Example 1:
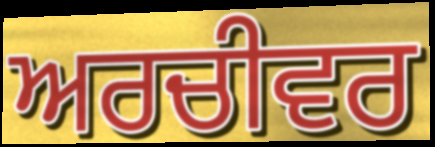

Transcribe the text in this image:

ਅਰਚੀਵਰ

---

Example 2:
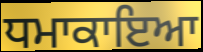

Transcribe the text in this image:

ਧਮਾਕਾਇਆ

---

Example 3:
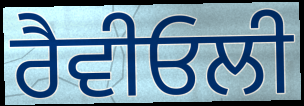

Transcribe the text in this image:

ਰੈਵੀਓਲੀ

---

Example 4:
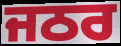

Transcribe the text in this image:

ਜਠਰ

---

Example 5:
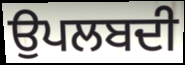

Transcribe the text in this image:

ਉਪਲਬਦੀ